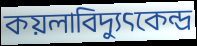
কয়লাবিদ্যুৎকেন্দ্র